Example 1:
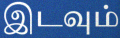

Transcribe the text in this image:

இடவும்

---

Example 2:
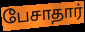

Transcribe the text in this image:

பேசாதார்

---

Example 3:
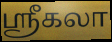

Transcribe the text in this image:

ஶ்ரீகலா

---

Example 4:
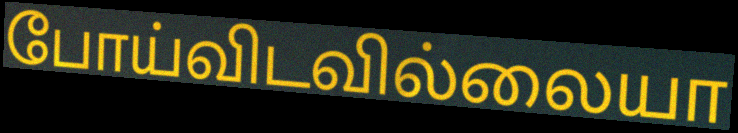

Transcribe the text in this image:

போய்விடவில்லையா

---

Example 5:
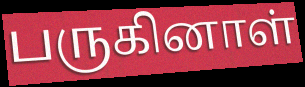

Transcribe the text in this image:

பருகினாள்